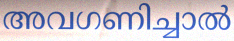
അവഗണിച്ചാൽ